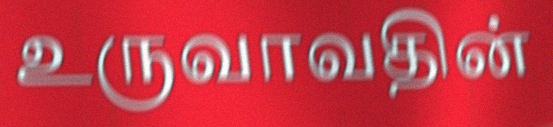
உருவாவதின்